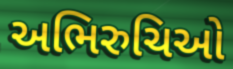
અભિરુચિઓ